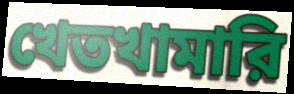
খেতখামারি